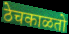
ठेचकाळतो